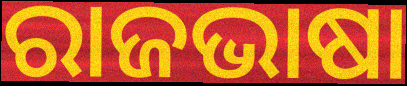
ରାଜଭାଷା